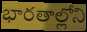
భారతాల్లోని